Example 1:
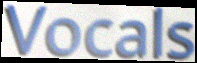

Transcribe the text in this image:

Vocals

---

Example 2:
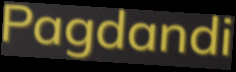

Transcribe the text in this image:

Pagdandi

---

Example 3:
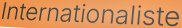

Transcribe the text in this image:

Internationaliste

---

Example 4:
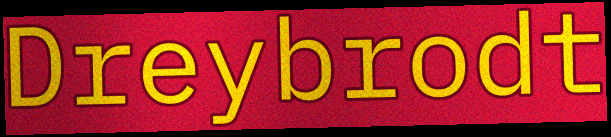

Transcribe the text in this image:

Dreybrodt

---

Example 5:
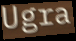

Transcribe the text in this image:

Ugra